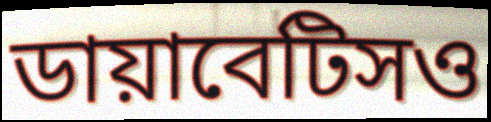
ডায়াবেটিসও